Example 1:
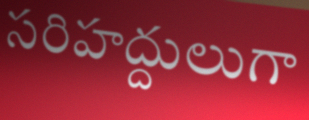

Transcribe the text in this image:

సరిహద్దులుగా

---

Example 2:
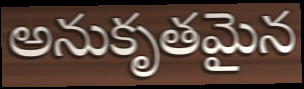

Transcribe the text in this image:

అనుకృతమైన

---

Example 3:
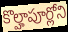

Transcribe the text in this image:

కొల్హాపూర్లోని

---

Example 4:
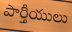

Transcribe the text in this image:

పార్తీయులు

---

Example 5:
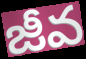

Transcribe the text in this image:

జీవ